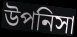
উপনিসা